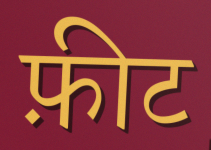
फ़ीट